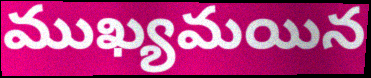
ముఖ్యమయిన